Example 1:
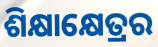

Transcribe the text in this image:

ଶିକ୍ଷାକ୍ଷେତ୍ରର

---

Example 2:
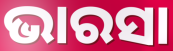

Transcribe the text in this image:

ଭାରସା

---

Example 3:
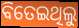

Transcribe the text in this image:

ବିତେଇଥିଲୁ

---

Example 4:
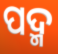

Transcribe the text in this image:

ପଦ୍ମ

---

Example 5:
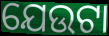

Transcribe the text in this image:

ଯେଉଟା